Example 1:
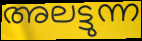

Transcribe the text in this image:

അലട്ടുന്ന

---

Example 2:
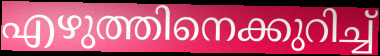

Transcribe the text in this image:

എഴുത്തിനെക്കുറിച്ച്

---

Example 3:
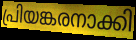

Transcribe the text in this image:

പ്രിയങ്കരനാക്കി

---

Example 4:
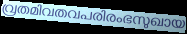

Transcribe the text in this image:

വ്രതമിവതവപരിരംഭസുഖായ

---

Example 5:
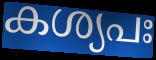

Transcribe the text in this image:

കശ്യപഃ